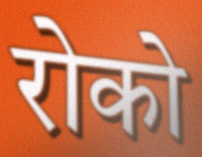
रोको